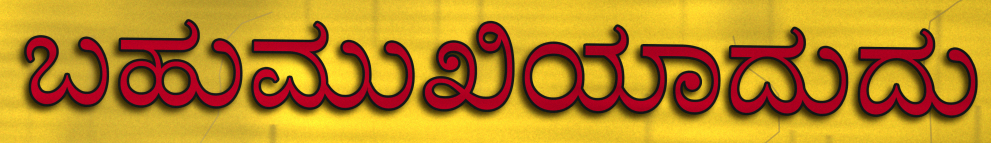
ಬಹುಮುಖಿಯಾದುದು